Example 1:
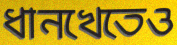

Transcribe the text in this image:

ধানখেতেও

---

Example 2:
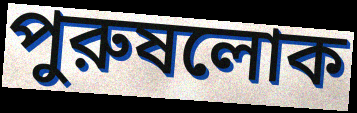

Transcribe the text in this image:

পুরুষলোক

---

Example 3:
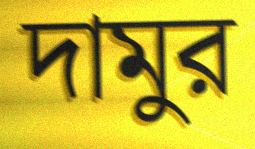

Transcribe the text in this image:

দামুর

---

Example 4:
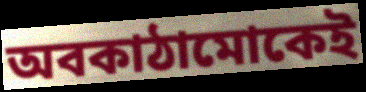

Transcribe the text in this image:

অবকাঠামোকেই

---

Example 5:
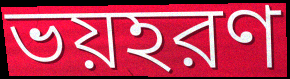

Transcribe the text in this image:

ভয়হরণ